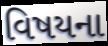
વિષયના